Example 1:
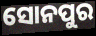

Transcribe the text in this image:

ସୋନପୁର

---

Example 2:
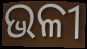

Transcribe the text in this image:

ଭଳୀ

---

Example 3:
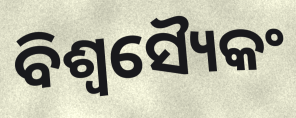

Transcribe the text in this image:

ବିଶ୍ୱସ୍ୟୈକଂ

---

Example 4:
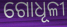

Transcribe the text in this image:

ଗୋଧୂଳୀ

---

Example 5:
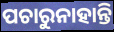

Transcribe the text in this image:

ପଚାରୁନାହାନ୍ତି